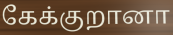
கேக்குறானா